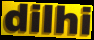
dilhi